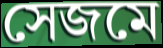
সেজমে